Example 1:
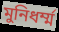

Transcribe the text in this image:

মুনিধর্ম্ম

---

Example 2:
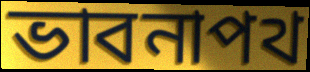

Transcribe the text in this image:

ভাবনাপথ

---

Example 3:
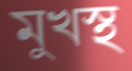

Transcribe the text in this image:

মুখস্থ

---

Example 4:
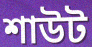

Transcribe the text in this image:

শাউট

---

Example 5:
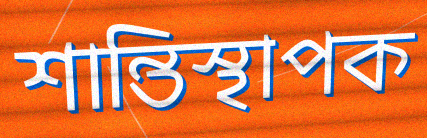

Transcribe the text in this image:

শান্তিস্থাপক